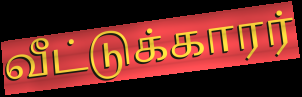
வீட்டுக்காரர்